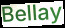
Bellay